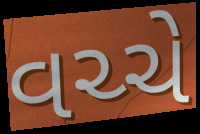
વચ્ચે